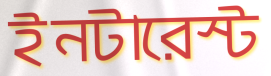
ইনটারেস্ট